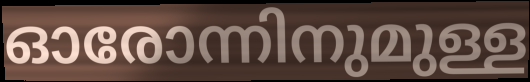
ഓരോന്നിനുമുള്ള